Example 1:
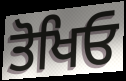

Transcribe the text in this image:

ਤੋਖਿਓ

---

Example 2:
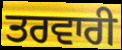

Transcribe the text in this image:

ਤਰਵਾਰੀ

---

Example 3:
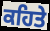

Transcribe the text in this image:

ਕਹਿਤੇ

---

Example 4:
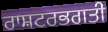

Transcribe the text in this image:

ਰਾਸ਼ਟਰਭਗਤੀ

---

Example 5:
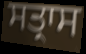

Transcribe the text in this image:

ਸਤ੍ਰਾਸ